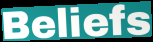
Beliefs